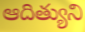
ఆదిత్యుని